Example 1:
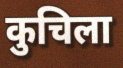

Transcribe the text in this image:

कुचिला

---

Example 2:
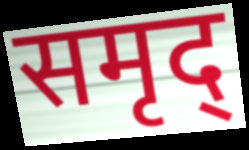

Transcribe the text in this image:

समृद्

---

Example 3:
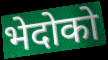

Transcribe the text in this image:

भेदोको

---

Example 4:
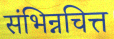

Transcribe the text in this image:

संभिन्नचित्त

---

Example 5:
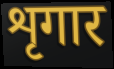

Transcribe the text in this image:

शृगार